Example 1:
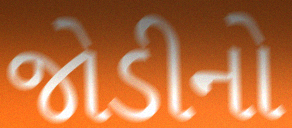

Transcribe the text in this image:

જોડીનો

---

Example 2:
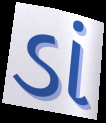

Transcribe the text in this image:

ડાં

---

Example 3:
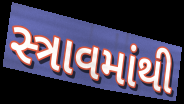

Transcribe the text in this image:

સ્ત્રાવમાંથી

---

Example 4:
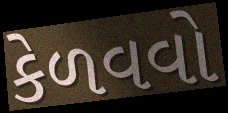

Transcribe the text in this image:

કેળવવો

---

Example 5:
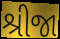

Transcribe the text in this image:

શ્રીજા